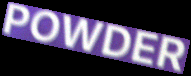
POWDER